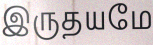
இருதயமே